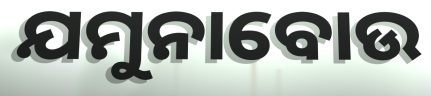
ଯମୁନାବୋଉ